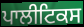
ਪਾਲੀਟਿਕਸ